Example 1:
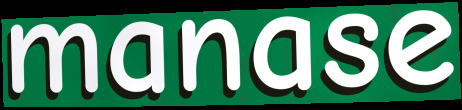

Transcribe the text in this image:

manase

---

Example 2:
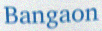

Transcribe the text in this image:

Bangaon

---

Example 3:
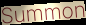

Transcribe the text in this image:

Summon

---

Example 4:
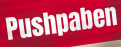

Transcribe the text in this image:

Pushpaben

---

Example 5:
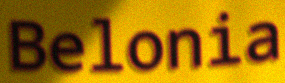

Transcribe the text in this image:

Belonia